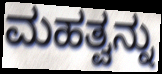
ಮಹತ್ವನ್ನು